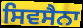
ਸਿਵਸੈਨਾ